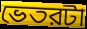
ভেতরটা